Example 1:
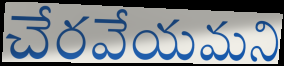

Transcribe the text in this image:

చేరవేయమని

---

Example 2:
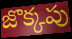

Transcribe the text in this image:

జొక్కపు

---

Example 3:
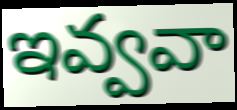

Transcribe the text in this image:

ఇవ్వవా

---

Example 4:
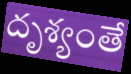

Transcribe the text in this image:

దృశ్యంతే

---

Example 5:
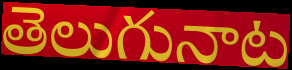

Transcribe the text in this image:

తెలుగునాట